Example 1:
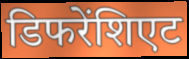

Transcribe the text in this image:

डिफरेंशिएट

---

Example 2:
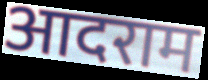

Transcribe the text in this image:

आदराम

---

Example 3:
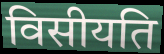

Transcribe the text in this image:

विसीयति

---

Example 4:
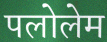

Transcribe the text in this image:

पलोलेम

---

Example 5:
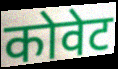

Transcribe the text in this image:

कोवेट